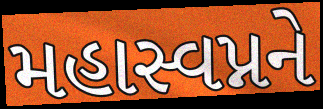
મહાસ્વપ્નને